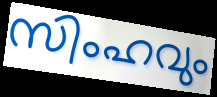
സിംഹവും